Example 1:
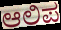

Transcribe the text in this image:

ಆಲಿಪ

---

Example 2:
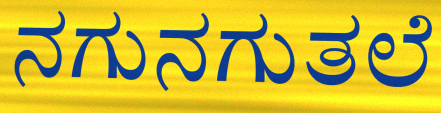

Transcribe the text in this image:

ನಗುನಗುತಲೆ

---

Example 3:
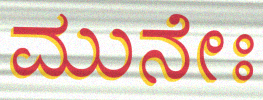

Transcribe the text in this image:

ಮುನೇಃ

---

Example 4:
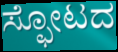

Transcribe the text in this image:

ಸ್ಫೋಟದ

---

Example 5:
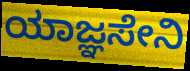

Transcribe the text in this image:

ಯಾಜ್ಞಸೇನಿ